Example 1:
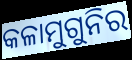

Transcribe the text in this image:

କଳାମୁଗୁନିର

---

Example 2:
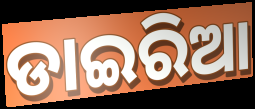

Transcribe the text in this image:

ଡାଇରିଆ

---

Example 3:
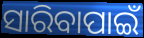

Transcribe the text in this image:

ସାରିବାପାଇଁ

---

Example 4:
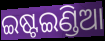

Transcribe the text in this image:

ଇଷ୍ଟଇଣ୍ଡିଆ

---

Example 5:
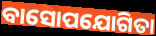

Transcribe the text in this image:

ବାସୋପଯୋଗିତା